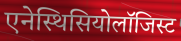
एनेस्थिसियोलॉजिस्ट